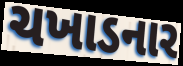
ચખાડનાર